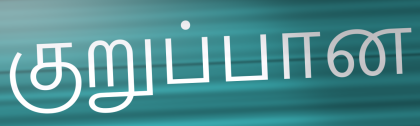
குறுப்பான